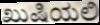
ಖುಷಿಯಲಿ